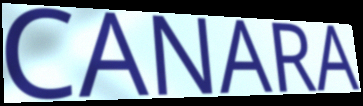
CANARA